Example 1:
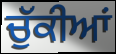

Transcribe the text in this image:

ਚੁੱਕੀਆਂ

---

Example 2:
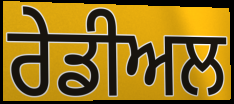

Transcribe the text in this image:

ਰੇਡੀਅਲ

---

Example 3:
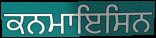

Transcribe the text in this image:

ਕਨਮਾਇਸਿਨ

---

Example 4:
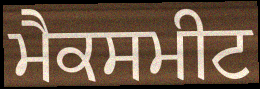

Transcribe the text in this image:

ਮੈਕਸਮੀਟ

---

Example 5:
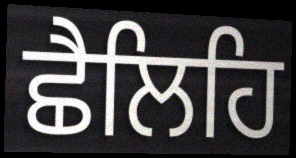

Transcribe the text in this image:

ਛੈਲਿਹਿ